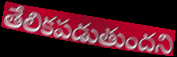
తేలికపడుతుందని